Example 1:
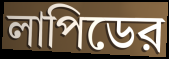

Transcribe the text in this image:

লাপিডের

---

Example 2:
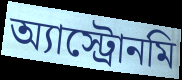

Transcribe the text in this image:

অ্যাস্ট্রোনমি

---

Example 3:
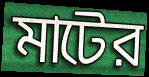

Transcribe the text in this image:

মাটের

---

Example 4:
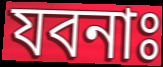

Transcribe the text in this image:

যবনাঃ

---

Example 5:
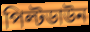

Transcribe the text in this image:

পিল্টডাউন